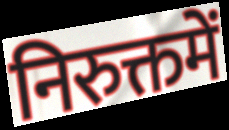
निरुक्तमें